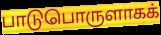
பாடுபொருளாகக்